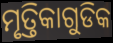
ମୃତ୍ତିକାଗୁଡିକ